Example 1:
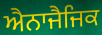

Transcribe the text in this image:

ਐਨਾਜੈਜਿਕ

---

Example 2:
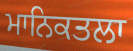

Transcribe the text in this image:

ਮਾਨਿਕਤਲਾ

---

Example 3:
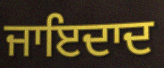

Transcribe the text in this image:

ਜਾਇਦਾਦ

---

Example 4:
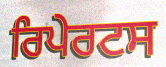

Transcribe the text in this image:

ਰਿਪੇਰਟਸ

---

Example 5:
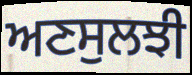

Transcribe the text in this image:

ਅਣਸੁਲਝੀ